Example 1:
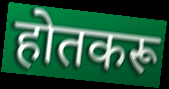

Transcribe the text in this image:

होतकरू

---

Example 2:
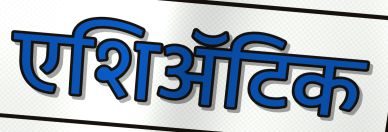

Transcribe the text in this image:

एशिॲटिक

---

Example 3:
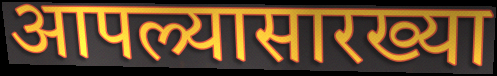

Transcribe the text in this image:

आपल्यासारख्या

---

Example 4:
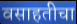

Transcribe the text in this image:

वसाहतीचा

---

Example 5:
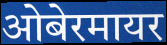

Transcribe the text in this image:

ओबेरमायर